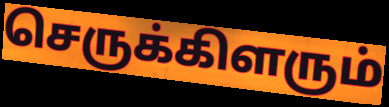
செருக்கிளரும்